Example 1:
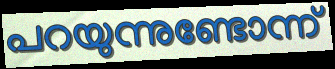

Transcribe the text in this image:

പറയുന്നുണ്ടോന്ന്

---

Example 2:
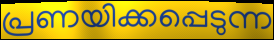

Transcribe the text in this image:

പ്രണയിക്കപ്പെടുന്ന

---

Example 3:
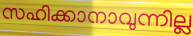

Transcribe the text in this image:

സഹിക്കാനാവുന്നില്ല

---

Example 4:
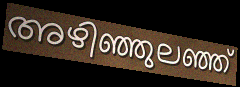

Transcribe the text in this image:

അഴിഞ്ഞുലഞ്ഞ്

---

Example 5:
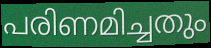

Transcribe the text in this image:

പരിണമിച്ചതും